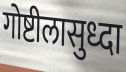
गोष्टीलासुध्दा